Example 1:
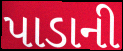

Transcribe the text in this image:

પાડાની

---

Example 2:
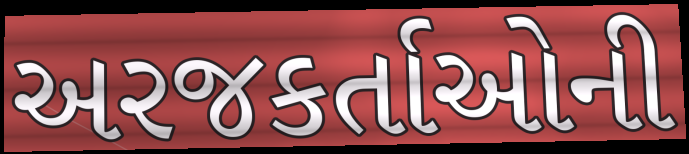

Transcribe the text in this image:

અરજકર્તાઓની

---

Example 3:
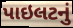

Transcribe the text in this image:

પાઇલટનું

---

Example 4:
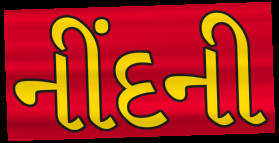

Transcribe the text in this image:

નીંદની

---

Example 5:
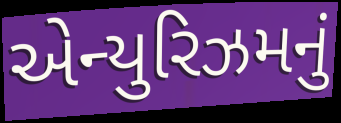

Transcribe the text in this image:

એન્યુરિઝમનું